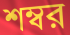
শম্বর